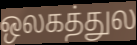
ஒலகத்துல